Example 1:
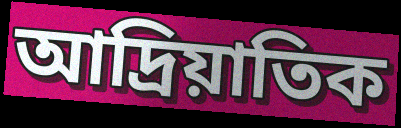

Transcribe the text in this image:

আদ্রিয়াতিক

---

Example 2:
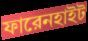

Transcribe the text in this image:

ফারেনহাইট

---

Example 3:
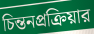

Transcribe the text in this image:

চিন্তনপ্রক্রিয়ার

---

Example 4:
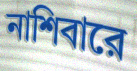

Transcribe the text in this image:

নাশিবারে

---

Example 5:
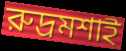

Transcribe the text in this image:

রুদ্রমশাই